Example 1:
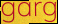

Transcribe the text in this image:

garg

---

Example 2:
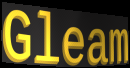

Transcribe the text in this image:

Gleam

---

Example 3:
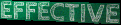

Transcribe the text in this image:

EFFECTIVE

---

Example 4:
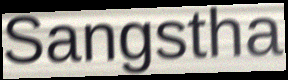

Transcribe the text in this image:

Sangstha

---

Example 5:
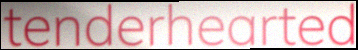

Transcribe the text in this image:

tenderhearted